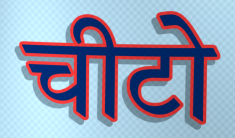
चीटो